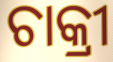
ଚାକ୍ରୀ